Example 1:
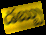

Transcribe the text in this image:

డబ్బు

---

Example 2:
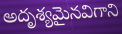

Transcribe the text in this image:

అదృశ్యమైనవిగాని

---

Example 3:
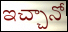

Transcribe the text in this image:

ఇచ్చానో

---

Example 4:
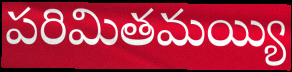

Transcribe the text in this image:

పరిమితమయ్యి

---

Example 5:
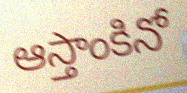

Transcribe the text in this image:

ఆస్తాంకినో